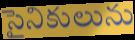
సైనికులును